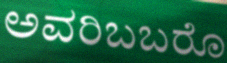
ಅವರಿಬಬರೊ